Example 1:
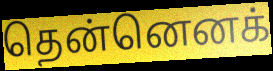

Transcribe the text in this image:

தென்னெனக்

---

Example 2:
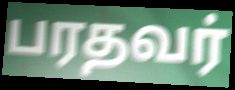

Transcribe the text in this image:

பரதவர்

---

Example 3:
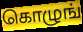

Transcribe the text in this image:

கொழுங்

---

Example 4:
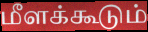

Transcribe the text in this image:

மீளக்கூடும்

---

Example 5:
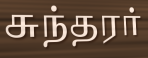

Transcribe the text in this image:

சுந்தரர்